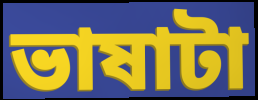
ভাষাটা